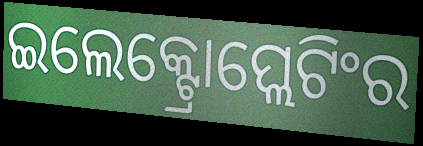
ଇଲେକ୍ଟ୍ରୋପ୍ଲେଟିଂର